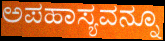
ಅಪಹಾಸ್ಯವನ್ನೂ